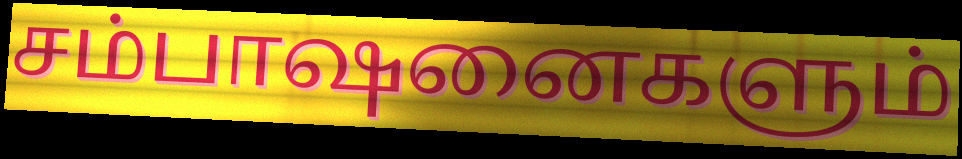
சம்பாஷனைகளும்